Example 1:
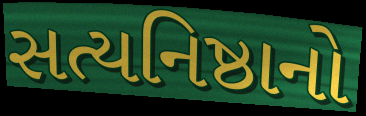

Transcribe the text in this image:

સત્યનિષ્ઠાનો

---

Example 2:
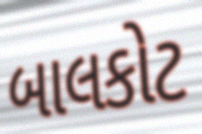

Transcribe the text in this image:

બાલકોટ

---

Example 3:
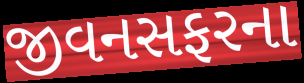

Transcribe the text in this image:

જીવનસફરના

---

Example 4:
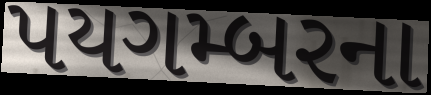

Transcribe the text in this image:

પયગમ્બરના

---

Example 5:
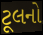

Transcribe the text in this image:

ટૂલનો